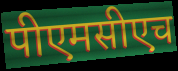
पीएमसीएच